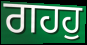
ਗਹਹੁ